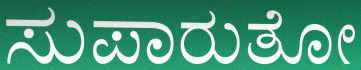
ಸುಪಾರುತೋ